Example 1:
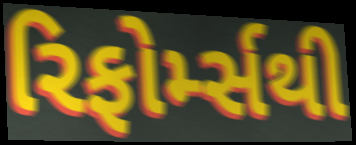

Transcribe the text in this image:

રિફોર્મ્સથી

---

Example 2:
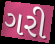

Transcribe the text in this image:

ગરી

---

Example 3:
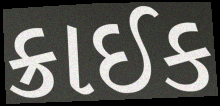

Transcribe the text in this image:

ક્રાઈક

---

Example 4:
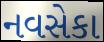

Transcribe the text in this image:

નવસેકા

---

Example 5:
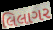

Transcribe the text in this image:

લિલાગર